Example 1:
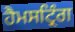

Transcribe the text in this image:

ਹੈਮਸਟ੍ਰਿੰਗ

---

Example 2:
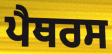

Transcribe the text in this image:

ਪੈਥਰਸ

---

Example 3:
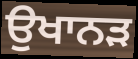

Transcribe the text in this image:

ਉਖਾਨੜ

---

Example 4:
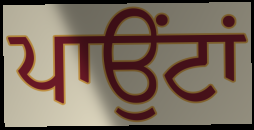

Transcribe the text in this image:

ਪਾਉਂਟਾਂ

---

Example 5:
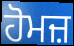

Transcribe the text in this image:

ਹੋਮਜ਼